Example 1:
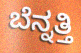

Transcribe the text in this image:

ಬೆನ್ನತ್ತಿ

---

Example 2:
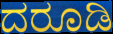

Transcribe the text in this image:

ದರೂಡಿ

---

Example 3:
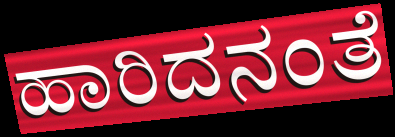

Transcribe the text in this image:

ಹಾರಿದನಂತೆ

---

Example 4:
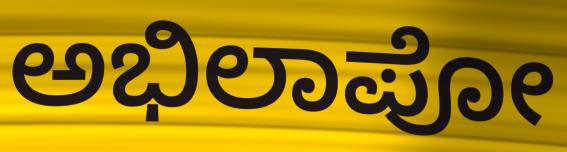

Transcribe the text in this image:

ಅಭಿಲಾಪೋ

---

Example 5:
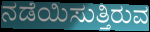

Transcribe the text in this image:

ನಡೆಯಿಸುತ್ತಿರುವ